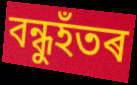
বন্ধুহঁতৰ